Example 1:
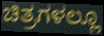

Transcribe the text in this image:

ಚಿತ್ರಗಳಲ್ಲೂ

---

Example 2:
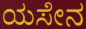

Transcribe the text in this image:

ಯಸೇನ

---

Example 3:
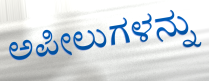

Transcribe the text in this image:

ಅಪೀಲುಗಳನ್ನು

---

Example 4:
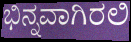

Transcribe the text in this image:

ಭಿನ್ನವಾಗಿರಲಿ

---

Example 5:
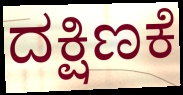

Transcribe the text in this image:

ದಕ್ಷಿಣಕೆ